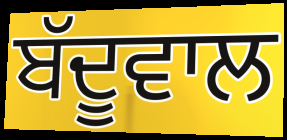
ਬੱਦੂਵਾਲ